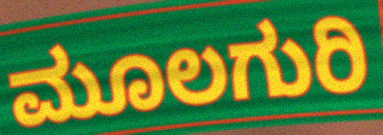
ಮೂಲಗುರಿ